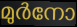
മുർനോ